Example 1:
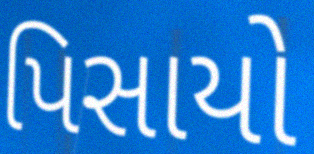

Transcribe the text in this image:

પિસાયો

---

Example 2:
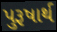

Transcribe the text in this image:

પુરૂષાર્થ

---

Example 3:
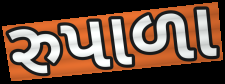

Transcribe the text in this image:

રુપાળા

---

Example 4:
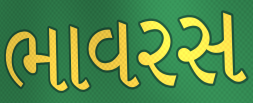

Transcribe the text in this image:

ભાવરસ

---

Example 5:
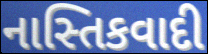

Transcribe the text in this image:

નાસ્તિકવાદી